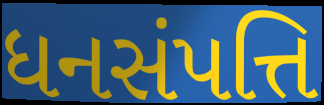
ધનસંપત્તિ